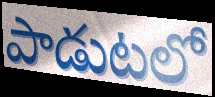
పాడుటలో